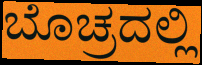
ಬೊಚ್ರದಲ್ಲಿ